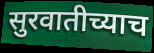
सुरवातीच्याच